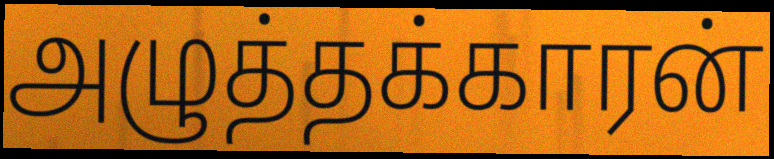
அழுத்தக்காரன்